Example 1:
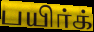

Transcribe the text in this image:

பயிர்க்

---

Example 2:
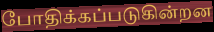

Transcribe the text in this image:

போதிக்கப்படுகின்றன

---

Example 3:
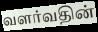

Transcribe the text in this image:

வளர்வதின்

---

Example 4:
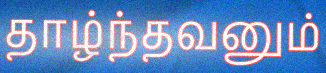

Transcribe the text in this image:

தாழ்ந்தவனும்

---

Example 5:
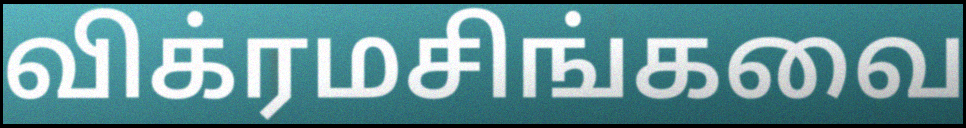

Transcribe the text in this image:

விக்ரமசிங்கவை